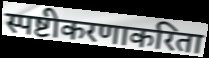
स्पष्टीकरणाकरिता